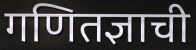
गणितज्ञाची